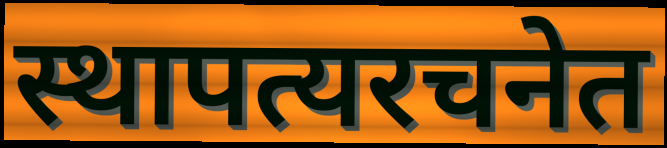
स्थापत्यरचनेत